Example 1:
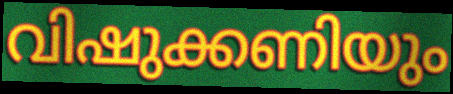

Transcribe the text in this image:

വിഷുക്കണിയും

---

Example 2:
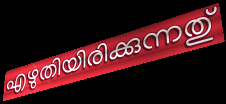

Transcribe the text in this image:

എഴുതിയിരിക്കുന്നതു്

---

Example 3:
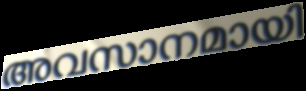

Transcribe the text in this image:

അവസാനമായി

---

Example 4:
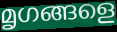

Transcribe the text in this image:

മൃഗങ്ങളെ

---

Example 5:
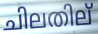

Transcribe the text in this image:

ചിലതില്